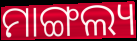
ମାଙ୍ଗଲ୍ୟ